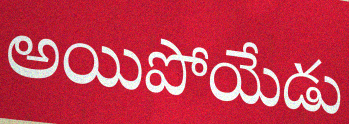
అయిపోయేడు